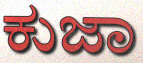
ಕುಜಾ